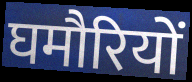
घमौरियों